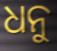
ଧନୁ